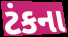
ટંકના